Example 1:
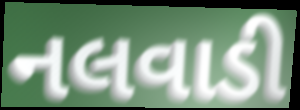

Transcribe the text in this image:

નલવાડી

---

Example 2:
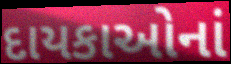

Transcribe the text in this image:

દાયકાઓનાં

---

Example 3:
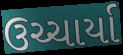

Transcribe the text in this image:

ઉચ્ચાર્યા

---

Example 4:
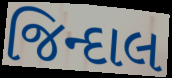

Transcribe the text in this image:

જિન્દાલ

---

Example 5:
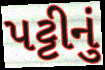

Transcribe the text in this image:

પટ્ટીનું